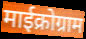
माईक्रोग्राम